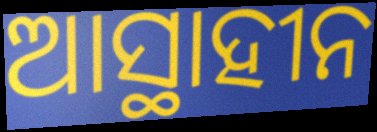
ଆସ୍ଥାହୀନ